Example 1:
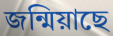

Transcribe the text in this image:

জন্মিয়াছে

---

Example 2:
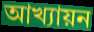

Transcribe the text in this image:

আখ্যায়ন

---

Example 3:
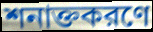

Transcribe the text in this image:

শনাক্তকরণে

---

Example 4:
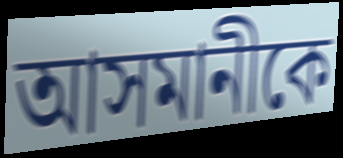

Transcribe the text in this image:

আসমানীকে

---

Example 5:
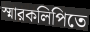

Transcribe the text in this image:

স্মারকলিপিতে